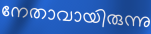
നേതാവായിരുന്നു